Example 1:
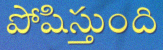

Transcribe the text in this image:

పోషిస్తుంది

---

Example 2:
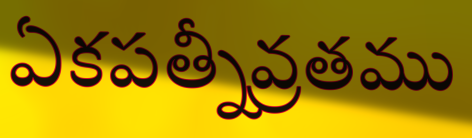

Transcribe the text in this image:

ఏకపత్నీవ్రతము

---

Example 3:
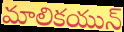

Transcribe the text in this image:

మాలికయున్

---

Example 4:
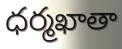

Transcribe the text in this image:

ధర్మఖాతా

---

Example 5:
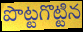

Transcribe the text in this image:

పొట్టగొట్టిన